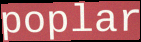
poplar